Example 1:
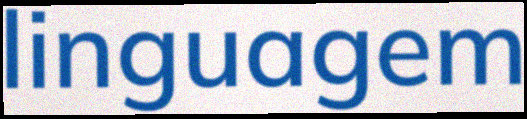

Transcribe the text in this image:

linguagem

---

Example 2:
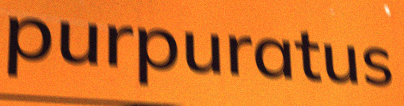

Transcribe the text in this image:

purpuratus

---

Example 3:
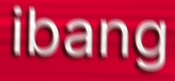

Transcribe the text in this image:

ibang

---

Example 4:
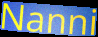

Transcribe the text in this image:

Nanni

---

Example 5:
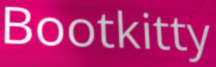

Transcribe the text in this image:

Bootkitty